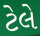
ટેલે